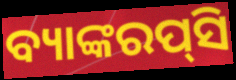
ବ୍ୟାଙ୍କରପ୍‌ସି